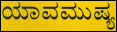
ಯಾವಮುಷ್ಯ